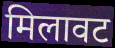
मिलावट